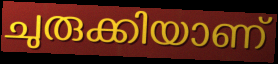
ചുരുക്കിയാണ്